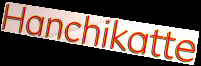
Hanchikatte